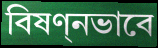
বিষণ্নভাবে